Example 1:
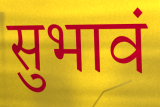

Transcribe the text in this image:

सुभावं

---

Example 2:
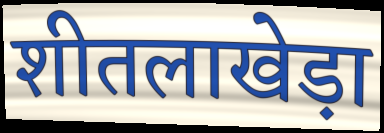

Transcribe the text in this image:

शीतलाखेड़ा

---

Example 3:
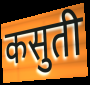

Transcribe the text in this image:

कसुती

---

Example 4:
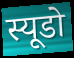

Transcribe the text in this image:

स्यूडो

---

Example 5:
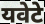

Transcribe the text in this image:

यवेटे